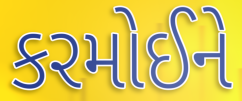
કરમોઈને